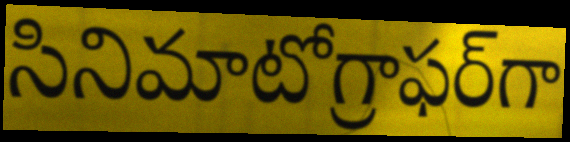
సినిమాటోగ్రాఫర్‌గా